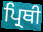
ਪ੍ਰਿਥੀ